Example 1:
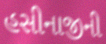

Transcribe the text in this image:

હસીનાજીની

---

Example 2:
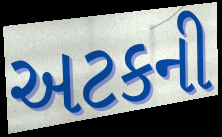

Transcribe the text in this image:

અટકની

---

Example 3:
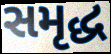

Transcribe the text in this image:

સમૃદ્ધ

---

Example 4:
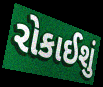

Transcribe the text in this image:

રોકાઈશું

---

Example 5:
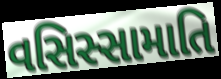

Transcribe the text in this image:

વસિસ્સામાતિ